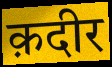
क़दीर